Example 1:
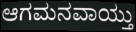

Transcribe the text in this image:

ಆಗಮನವಾಯ್ತು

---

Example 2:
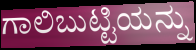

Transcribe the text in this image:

ಗಾಲಿಬುಟ್ಟಿಯನ್ನು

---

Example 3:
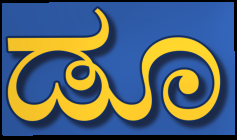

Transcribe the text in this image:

ಡೂ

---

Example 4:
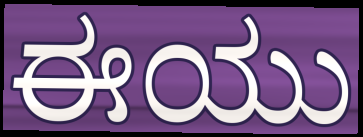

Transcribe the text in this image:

ಈಯು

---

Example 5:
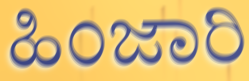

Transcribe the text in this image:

ಹಿಂಜಾರಿ